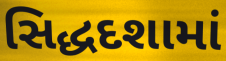
સિદ્ધદશામાં